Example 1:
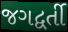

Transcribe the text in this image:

જગદ્વર્તી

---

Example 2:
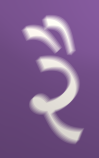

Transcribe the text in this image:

રૈ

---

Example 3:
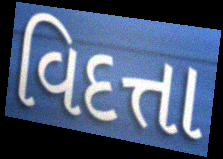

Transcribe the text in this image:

વિદત્તા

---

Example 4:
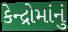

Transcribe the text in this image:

કેન્દ્રોમાંનું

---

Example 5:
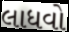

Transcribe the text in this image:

લાધવો